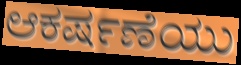
ಆಕರ್ಷಣೆಯು